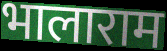
भालाराम